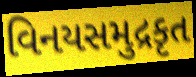
વિનયસમુદ્રકૃત